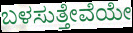
ಬಳಸುತ್ತೇವೆಯೇ